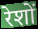
रेशों